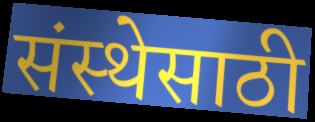
संस्थेसाठी